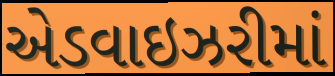
એડવાઇઝરીમાં